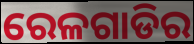
ରେଳଗାଡିର